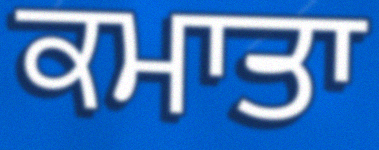
ਕਮਾਤਾ